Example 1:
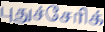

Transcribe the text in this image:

புதுச்சேரிக்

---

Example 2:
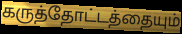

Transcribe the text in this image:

கருத்தோட்டத்தையும்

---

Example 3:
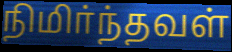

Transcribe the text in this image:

நிமிர்ந்தவள்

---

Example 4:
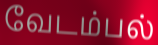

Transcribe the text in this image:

வேடம்பல்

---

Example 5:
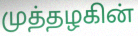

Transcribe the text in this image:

முத்தழகின்